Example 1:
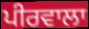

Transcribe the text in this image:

ਪੀਰਵਾਲਾ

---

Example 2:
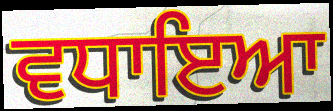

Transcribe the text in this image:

ਵਧਾਇਆ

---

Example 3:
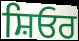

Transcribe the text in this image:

ਸ਼ਿਓਰ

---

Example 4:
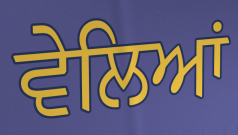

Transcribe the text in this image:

ਵੇਲਿਆਂ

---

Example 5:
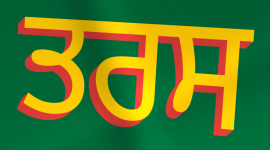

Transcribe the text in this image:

ਤਰਸ